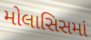
મોલાસિસમાં